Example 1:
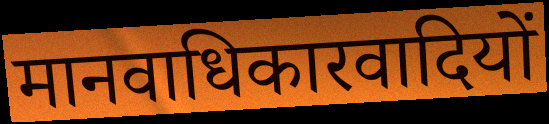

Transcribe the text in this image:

मानवाधिकारवादियों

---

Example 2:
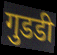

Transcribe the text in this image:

गुडडी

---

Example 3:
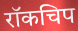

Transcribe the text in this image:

रॉकचिप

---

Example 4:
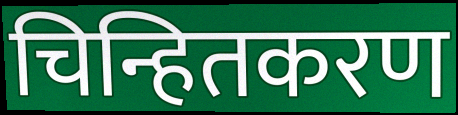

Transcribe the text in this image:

चिन्हितकरण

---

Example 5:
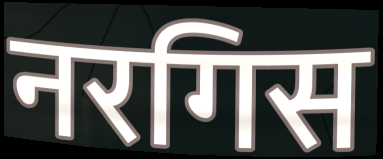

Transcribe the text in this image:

नरगिस